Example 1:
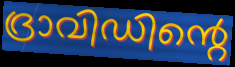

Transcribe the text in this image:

ദ്രാവിഡിന്റെ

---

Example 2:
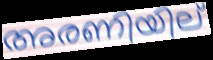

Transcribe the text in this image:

അരണിയില്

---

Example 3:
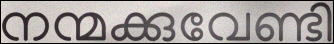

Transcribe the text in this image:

നന്മക്കുവേണ്ടി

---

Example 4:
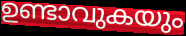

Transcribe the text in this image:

ഉണ്ടാവുകയും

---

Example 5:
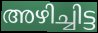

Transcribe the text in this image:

അഴിച്ചിട്ട